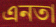
এনতা